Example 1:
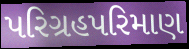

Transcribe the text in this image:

પરિગ્રહપરિમાણ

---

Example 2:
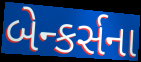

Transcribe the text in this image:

બેન્કર્સના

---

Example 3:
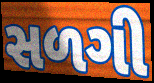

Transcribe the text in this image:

સળગી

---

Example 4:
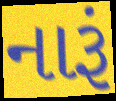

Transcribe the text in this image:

નારૂં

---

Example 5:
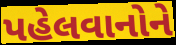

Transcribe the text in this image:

પહેલવાનોને